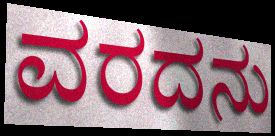
ವರದನು